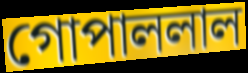
গোপাললাল